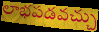
లాభపడవచ్చు